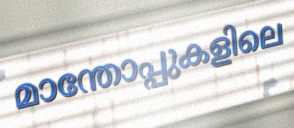
മാന്തോപ്പുകളിലെ